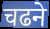
चढने